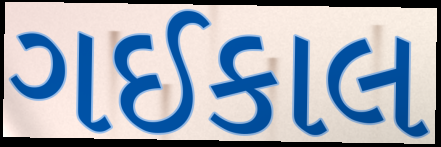
ગઈકાલ